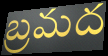
బ్రమద